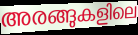
അരങ്ങുകളിലെ